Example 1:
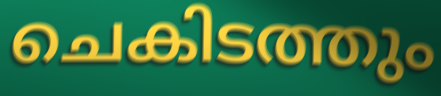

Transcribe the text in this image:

ചെകിടത്തും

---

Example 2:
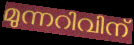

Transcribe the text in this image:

മുന്നറിവിന്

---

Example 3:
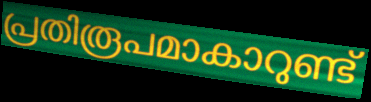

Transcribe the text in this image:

പ്രതിരൂപമാകാറുണ്ട്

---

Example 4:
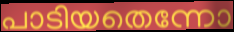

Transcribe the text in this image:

പാടിയതെന്നോ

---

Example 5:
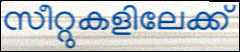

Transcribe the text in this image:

സീറ്റുകളിലേക്ക്